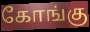
கோங்கு